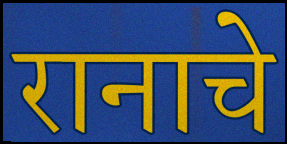
रानाचे